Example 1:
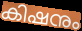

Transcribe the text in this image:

കിഷനും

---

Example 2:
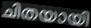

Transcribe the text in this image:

ചിതയായി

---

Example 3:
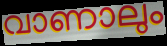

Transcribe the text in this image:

വാണാലും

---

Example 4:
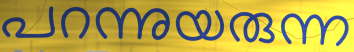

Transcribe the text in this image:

പറന്നുയരുന്ന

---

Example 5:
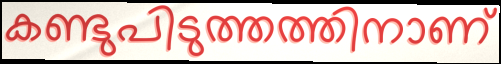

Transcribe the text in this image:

കണ്ടുപിടുത്തത്തിനാണ്